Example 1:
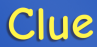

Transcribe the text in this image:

Clue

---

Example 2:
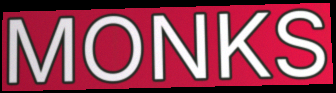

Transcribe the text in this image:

MONKS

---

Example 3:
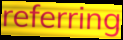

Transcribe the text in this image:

referring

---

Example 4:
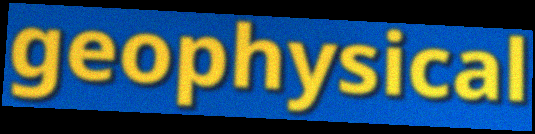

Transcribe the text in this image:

geophysical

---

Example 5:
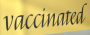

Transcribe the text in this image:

vaccinated